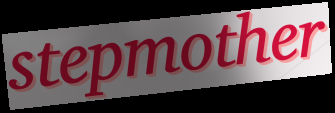
stepmother